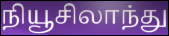
நியூசிலாந்து